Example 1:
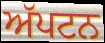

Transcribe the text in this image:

ਅੱਪਟਨ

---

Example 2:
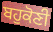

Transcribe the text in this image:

ਬਹੁਕੋਣੀ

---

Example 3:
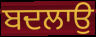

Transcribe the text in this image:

ਬਦਲਾਉ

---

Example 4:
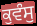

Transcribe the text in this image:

ਕੁਵੰਸੁ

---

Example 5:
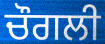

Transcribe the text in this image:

ਚੌਗਲੀ